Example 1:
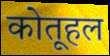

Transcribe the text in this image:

कोतूहल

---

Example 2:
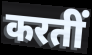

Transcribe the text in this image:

करतीं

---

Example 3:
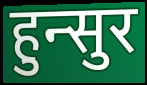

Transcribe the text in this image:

हुन्सुर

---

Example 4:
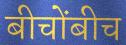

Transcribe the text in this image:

बीचोंबीच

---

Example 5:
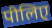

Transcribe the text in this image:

पीलिए